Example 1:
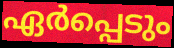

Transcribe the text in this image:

ഏർപ്പെടും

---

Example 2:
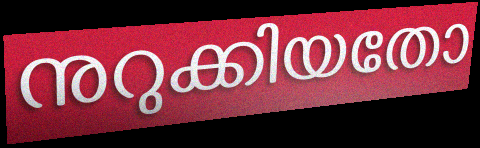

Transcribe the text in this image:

നുറുക്കിയതോ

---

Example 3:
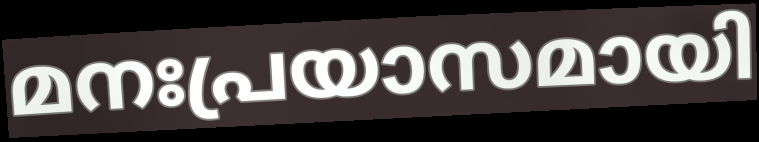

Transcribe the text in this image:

മനഃപ്രയാസമായി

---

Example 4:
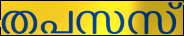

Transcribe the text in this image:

തപസസ്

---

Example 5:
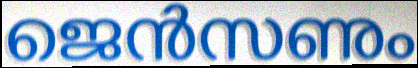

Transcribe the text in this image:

ജെൻസണും